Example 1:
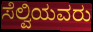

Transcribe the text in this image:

ಸೆಲ್ವಿಯವರು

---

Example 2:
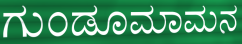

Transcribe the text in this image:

ಗುಂಡೂಮಾಮನ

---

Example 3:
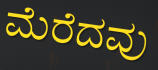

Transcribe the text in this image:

ಮೆರೆದವು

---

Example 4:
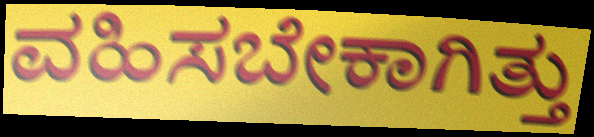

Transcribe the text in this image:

ವಹಿಸಬೇಕಾಗಿತ್ತು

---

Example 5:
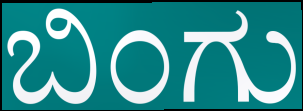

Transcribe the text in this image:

ಬಿಂಗು